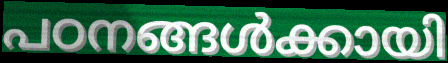
പഠനങ്ങൾക്കായി